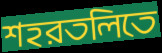
শহরতলিতে